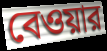
বেওয়ার